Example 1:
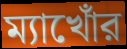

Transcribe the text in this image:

ম্যাখোঁর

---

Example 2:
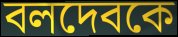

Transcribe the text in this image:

বলদেবকে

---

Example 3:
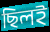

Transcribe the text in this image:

ছিলই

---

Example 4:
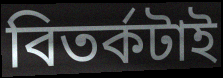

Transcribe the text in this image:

বিতর্কটাই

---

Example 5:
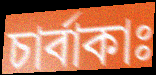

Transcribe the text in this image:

চার্বাকাঃ